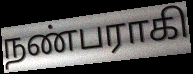
நண்பராகி